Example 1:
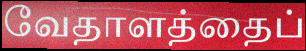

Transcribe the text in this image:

வேதாளத்தைப்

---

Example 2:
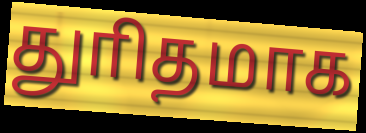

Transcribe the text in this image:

துரிதமாக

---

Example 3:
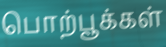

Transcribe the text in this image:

பொற்பூக்கள்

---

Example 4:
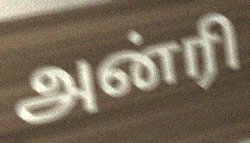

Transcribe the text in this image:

அன்ரி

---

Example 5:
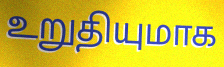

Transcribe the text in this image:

உறுதியுமாக